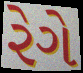
રેગે